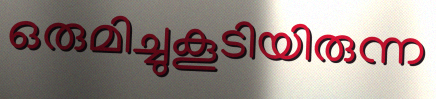
ഒരുമിച്ചുകൂടിയിരുന്ന